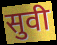
सुवी